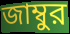
জাম্বুর